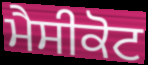
ਮੈਸੀਕੋਟ